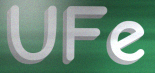
UFe